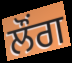
ਲੌਂਗ